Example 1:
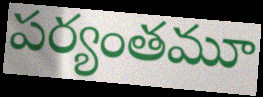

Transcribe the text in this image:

పర్యంతమూ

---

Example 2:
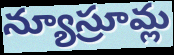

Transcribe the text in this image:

న్యూస్రూమ్ల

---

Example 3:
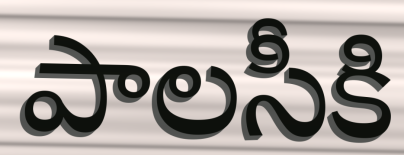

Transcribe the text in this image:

పాలసీకి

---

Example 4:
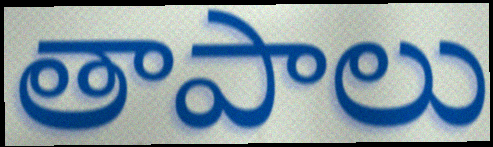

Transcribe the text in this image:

తాపాలు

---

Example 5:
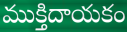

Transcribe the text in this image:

ముక్తిదాయకం